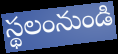
స్థలంనుండి